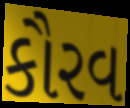
કૌરવ